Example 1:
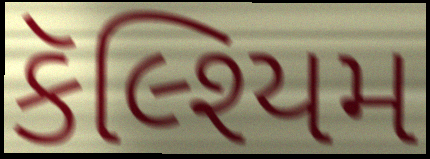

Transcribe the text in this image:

કૅલ્શ્યિમ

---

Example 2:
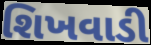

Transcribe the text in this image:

શિખવાડી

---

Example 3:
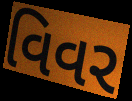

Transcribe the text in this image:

વિવર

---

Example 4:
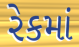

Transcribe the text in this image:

રેકમાં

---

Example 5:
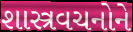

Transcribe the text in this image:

શાસ્ત્રવચનોને